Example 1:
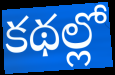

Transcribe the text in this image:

కథల్లో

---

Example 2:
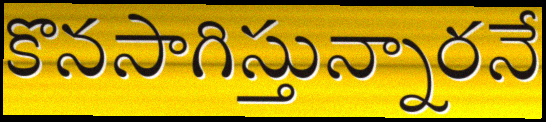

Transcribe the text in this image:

కొనసాగిస్తున్నారనే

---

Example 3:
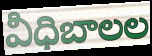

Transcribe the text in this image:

వీధిబాలల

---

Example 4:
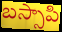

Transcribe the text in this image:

బస్సాపి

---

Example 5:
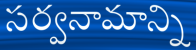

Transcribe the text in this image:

సర్వనామాన్ని